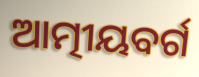
ଆତ୍ମୀୟବର୍ଗ